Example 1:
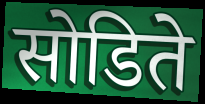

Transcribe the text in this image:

सोडिते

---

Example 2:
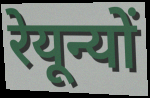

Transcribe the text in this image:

रेयून्यों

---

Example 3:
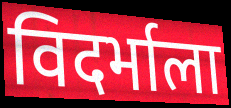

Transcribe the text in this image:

विदर्भाला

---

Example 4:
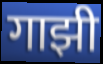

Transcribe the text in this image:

गाझी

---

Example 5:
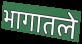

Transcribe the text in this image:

भागातले